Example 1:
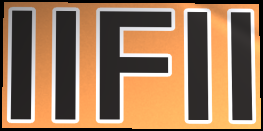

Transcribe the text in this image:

IIFII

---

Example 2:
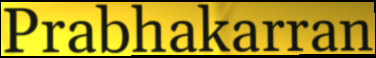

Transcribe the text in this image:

Prabhakarran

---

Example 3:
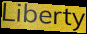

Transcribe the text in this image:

Liberty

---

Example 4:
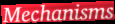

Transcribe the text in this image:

Mechanisms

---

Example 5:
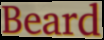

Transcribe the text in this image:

Beard